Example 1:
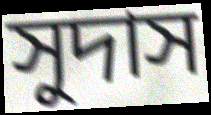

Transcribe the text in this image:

সুদাস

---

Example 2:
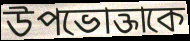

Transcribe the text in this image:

উপভোক্তাকে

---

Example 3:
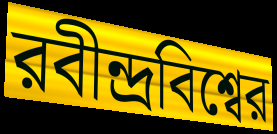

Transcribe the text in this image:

রবীন্দ্রবিশ্বের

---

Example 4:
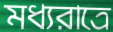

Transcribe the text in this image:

মধ্যরাত্রে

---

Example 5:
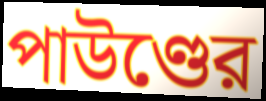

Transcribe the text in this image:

পাউণ্ডের